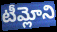
టీమ్లోని